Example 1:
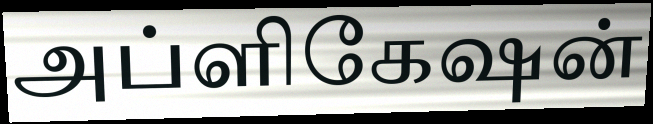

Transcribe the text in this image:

அப்ளிகேஷன்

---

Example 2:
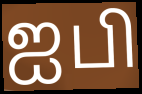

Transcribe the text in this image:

ஐபி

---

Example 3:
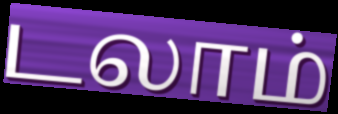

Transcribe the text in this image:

டலாம்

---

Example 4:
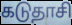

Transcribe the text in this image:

கடுதாசி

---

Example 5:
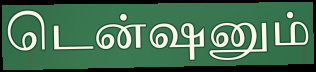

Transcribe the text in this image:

டென்ஷனும்